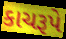
કાચરૂપે